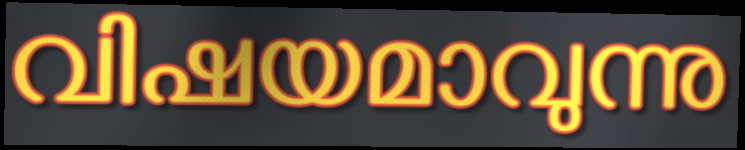
വിഷയമാവുന്നു